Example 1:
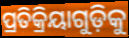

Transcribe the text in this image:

ପ୍ରତିକ୍ରିୟାଗୁଡ଼ିକୁ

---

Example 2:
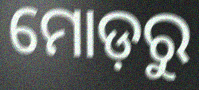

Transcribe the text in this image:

ମୋଡ଼ରୁ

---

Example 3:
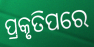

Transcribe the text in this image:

ପ୍ରକୃତିପରେ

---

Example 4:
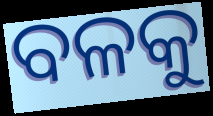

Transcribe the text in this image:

ବଳକୁ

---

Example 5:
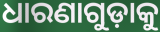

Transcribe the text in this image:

ଧାରଣାଗୁଡ଼ାକୁ